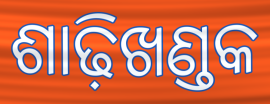
ଶାଢ଼ିଖଣ୍ଡକ